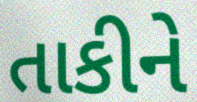
તાકીને